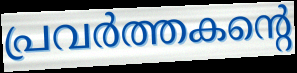
പ്രവർത്തകന്റെ